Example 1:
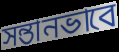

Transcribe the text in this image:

সন্তানভাবে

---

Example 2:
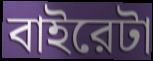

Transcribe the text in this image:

বাইরেটা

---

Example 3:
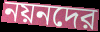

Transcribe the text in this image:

নয়নদের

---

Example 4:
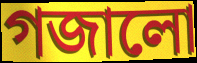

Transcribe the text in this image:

গজালো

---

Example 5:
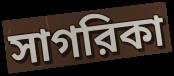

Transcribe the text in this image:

সাগরিকা